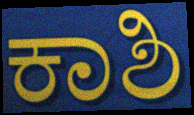
ಕಾಶಿ